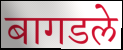
बागडले